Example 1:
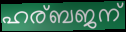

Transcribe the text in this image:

ഹര്ബജന്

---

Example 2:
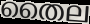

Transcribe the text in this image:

തൈല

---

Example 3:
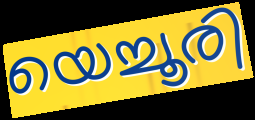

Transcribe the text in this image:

യെച്ചൂരി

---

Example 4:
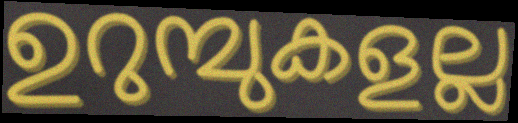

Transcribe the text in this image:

ഉറുമ്പുകളല്ല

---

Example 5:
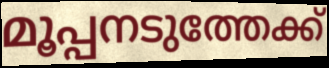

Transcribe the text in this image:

മൂപ്പനടുത്തേക്ക്